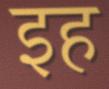
इह